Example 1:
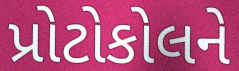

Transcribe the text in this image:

પ્રોટોકોલને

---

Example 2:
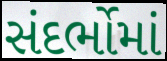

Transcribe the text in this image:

સંદર્ભોમાં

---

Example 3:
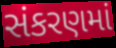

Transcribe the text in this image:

સંકરણમાં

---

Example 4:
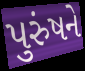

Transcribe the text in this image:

પુરુંષને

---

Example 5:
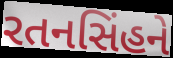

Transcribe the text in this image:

રતનસિંહને